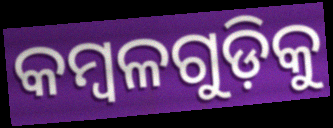
କମ୍ବଳଗୁଡ଼ିକୁ